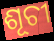
ଶୂଚୀ